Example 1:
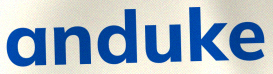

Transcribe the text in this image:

anduke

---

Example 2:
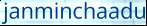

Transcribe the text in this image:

janminchaadu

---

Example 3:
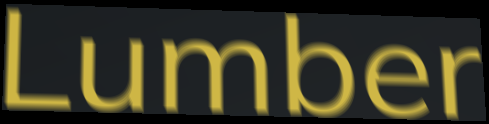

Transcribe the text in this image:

Lumber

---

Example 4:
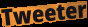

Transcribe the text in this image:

Tweeter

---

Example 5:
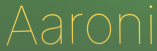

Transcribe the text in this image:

Aaroni